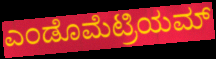
ಎಂಡೊಮೆಟ್ರಿಯಮ್